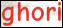
ghori